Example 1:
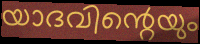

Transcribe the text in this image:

യാദവിന്റെയും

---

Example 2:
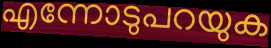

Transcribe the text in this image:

എന്നോടുപറയുക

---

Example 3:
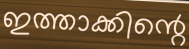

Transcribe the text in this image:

ഇത്താക്കിന്റെ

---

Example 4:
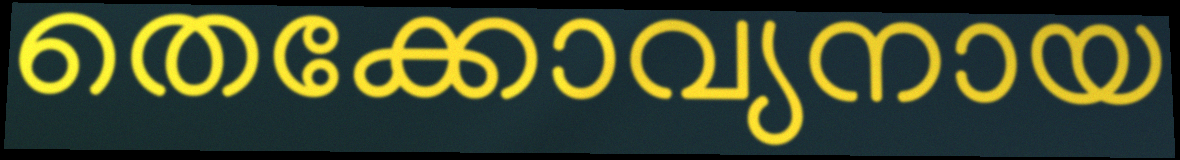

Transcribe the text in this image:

തെക്കോവ്യനായ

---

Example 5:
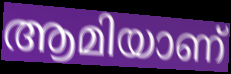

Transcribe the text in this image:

ആമിയാണ്